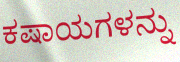
ಕಷಾಯಗಳನ್ನು